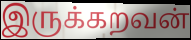
இருக்கறவன்